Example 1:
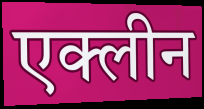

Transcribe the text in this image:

एक्लीन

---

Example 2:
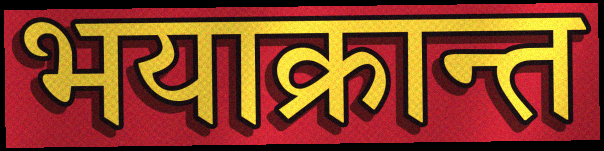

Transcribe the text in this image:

भयाक्रान्त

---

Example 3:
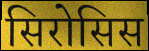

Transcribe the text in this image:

सिरोसिस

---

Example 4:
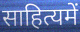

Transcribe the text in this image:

साहित्यमें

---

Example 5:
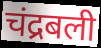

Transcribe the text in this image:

चंद्रबली